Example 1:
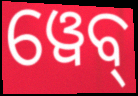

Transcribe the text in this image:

ୱେବ୍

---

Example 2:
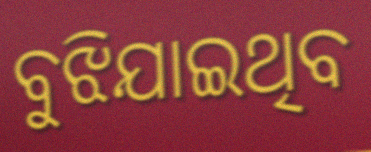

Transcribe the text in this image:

ବୁଝିଯାଇଥିବ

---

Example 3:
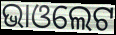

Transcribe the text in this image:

ଭାଓଲେଟ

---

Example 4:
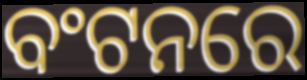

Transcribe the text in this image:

ବଂଟନରେ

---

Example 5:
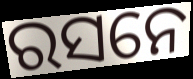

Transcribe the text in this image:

ରସନେ